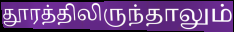
தூரத்திலிருந்தாலும்